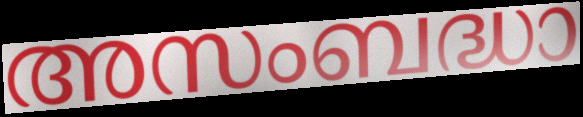
അസംബദ്ധാ